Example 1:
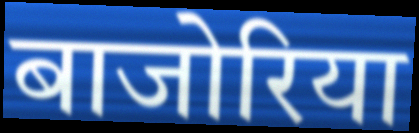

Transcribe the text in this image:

बाजोरिया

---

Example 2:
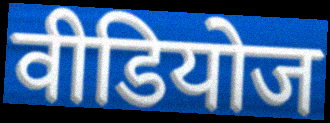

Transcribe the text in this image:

वीडियोज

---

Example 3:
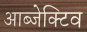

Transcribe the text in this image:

आब्जेक्टिव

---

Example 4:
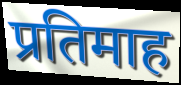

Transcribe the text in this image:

प्रतिमाह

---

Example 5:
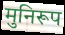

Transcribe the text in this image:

मुनिरूप